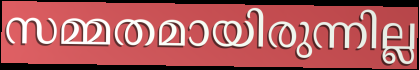
സമ്മതമായിരുന്നില്ല